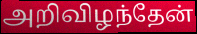
அறிவிழந்தேன்